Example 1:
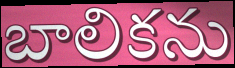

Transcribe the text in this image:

బాలికను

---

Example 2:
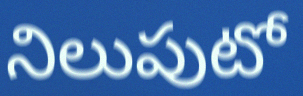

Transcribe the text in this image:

నిలుపుటో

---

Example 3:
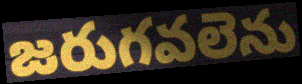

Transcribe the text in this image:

జరుగవలెను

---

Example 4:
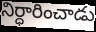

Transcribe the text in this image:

నిర్ధారించాడు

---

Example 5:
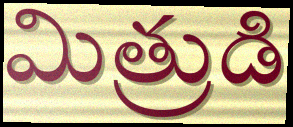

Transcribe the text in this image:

మిత్రుడి